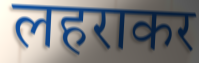
लहराकर